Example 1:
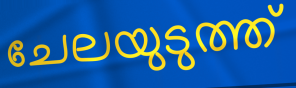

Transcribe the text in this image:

ചേലയുടുത്ത്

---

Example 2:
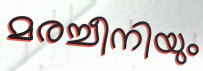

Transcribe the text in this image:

മരച്ചീനിയും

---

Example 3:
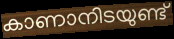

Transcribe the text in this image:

കാണാനിടയുണ്ട്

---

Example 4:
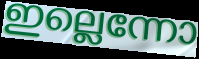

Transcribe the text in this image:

ഇല്ലെന്നോ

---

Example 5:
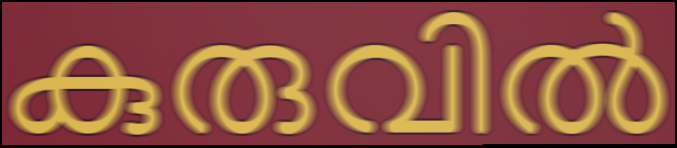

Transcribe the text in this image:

കുരുവിൽ